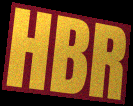
HBR